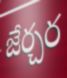
జేర్చర